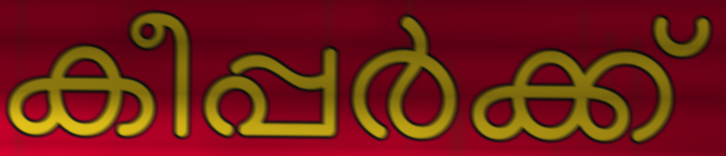
കീപ്പർക്ക്